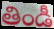
తిండీ